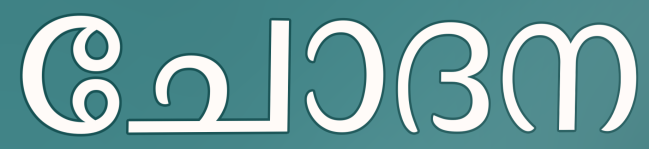
ചോദന